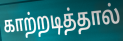
காற்றடித்தால்